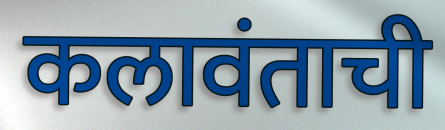
कलावंताची